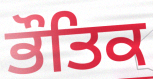
ਭੌਤਿਕ